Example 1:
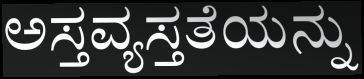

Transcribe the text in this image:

ಅಸ್ತವ್ಯಸ್ತತೆಯನ್ನು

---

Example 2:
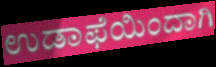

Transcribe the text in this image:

ಉಡಾಫೆಯಿಂದಾಗಿ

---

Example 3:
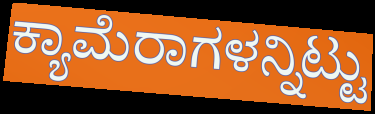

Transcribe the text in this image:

ಕ್ಯಾಮೆರಾಗಳನ್ನಿಟ್ಟು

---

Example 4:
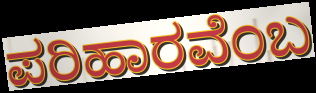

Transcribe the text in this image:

ಪರಿಹಾರವೆಂಬ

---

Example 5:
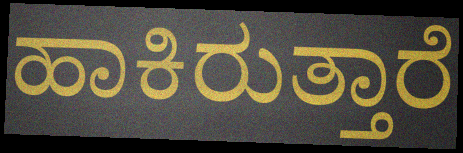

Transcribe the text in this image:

ಹಾಕಿರುತ್ತಾರೆ